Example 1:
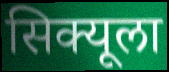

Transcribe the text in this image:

सिक्यूला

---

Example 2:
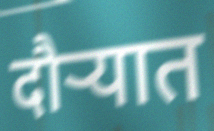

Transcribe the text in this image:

दौऱ्यात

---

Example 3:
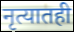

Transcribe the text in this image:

नृत्यातही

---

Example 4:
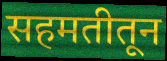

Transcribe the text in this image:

सहमतीतून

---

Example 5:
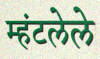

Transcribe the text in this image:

म्हंटलेले